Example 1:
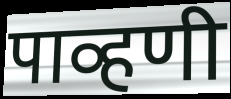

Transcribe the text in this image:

पाव्हणी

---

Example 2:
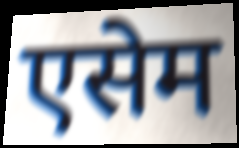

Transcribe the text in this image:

एसेम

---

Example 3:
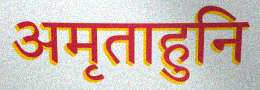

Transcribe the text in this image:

अमृताहुनि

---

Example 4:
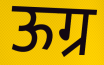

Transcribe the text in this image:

ऊग्र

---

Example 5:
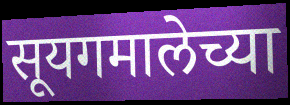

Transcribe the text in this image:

सूयगमालेच्या